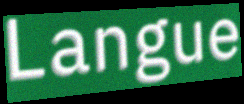
Langue